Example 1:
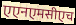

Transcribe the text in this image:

एएनएमसीएच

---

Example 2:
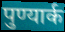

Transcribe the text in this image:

पुण्यार्क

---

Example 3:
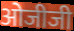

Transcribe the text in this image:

ओजीजी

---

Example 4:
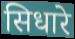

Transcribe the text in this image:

सिधारे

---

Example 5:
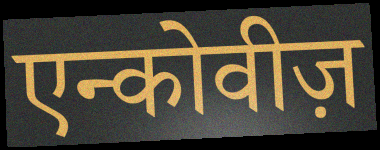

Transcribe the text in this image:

एन्कोवीज़